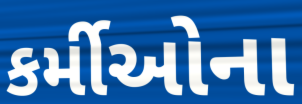
કર્મીઓના